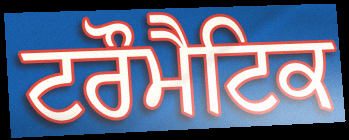
ਟਰੌਮੈਟਿਕ